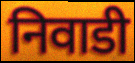
निवाडी